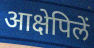
आक्षेपिलें